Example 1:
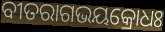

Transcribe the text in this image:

ବୀତରାଗଭୟକ୍ରୋଧଃ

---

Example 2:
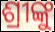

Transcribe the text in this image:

ଶ୍ରୀଙ୍କୁ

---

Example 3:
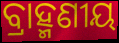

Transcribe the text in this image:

ବ୍ରାହ୍ମଣୀୟ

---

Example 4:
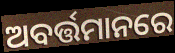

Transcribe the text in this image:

ଅବର୍ତ୍ତମାନରେ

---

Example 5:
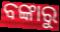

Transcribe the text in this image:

ବଙ୍କାରୁ